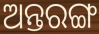
ଅନ୍ତରଙ୍ଗ